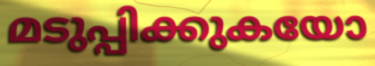
മടുപ്പിക്കുകയോ